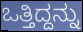
ಒತ್ತಿದ್ದನ್ನು